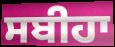
ਸਬੀਹਾ